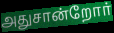
அதுசான்றோர்